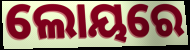
ଲୋୟରେ